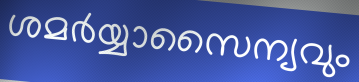
ശമർയ്യാസൈന്യവും